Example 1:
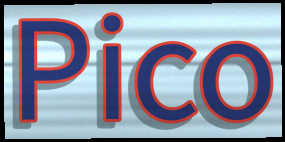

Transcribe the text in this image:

Pico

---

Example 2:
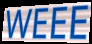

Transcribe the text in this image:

WEEE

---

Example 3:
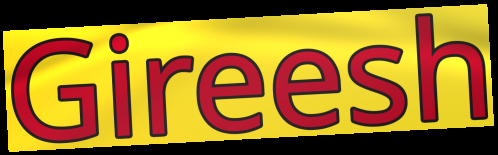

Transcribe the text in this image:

Gireesh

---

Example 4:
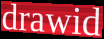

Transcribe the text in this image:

drawid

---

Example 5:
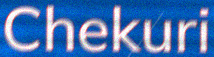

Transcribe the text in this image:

Chekuri